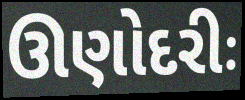
ઊણોદરીઃ